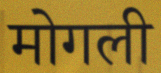
मोगली